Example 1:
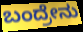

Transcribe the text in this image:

ಬಂದ್ರೇನು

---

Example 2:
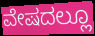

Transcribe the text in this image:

ವೇಷದಲ್ಲೂ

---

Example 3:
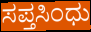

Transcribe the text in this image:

ಸಪ್ತಸಿಂಧು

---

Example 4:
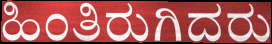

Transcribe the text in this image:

ಹಿಂತಿರುಗಿದರು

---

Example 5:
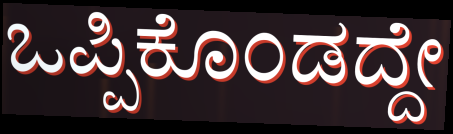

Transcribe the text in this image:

ಒಪ್ಪಿಕೊಂಡದ್ದೇ